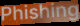
Phishing